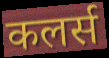
कलर्स